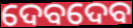
ଦେବଦେବ